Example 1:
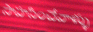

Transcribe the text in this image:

సాహసించేవాళ్ళు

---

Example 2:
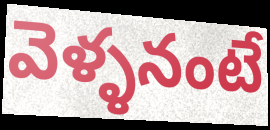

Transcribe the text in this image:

వెళ్ళనంటే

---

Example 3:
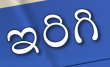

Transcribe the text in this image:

ఇరిగి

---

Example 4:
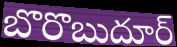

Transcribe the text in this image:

బొరొబుదూర్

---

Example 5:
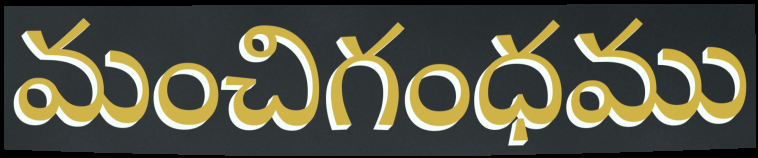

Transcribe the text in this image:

మంచిగంధము